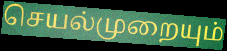
செயல்முறையும்